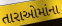
તારાઓમાંના